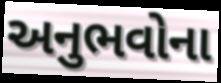
અનુભવોના